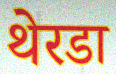
थेरडा